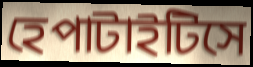
হেপাটাইটিসে